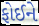
ફોઈને